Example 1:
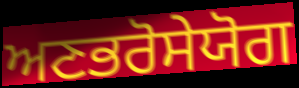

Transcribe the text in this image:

ਅਣਭਰੋਸੇਯੋਗ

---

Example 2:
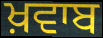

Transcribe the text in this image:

ਖ਼ਵਾਬ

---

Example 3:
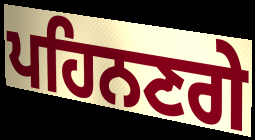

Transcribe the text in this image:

ਪਹਿਨਣਗੇ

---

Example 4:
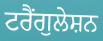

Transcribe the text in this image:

ਟਰੈਂਗੁਲੇਸ਼ਨ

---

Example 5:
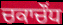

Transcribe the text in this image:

ਚਕਾਚੌਂਧ